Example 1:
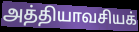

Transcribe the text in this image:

அத்தியாவசியக்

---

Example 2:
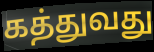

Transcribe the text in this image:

கத்துவது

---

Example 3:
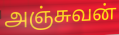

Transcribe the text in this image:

அஞ்சுவன்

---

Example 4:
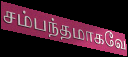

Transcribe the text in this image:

சம்பந்தமாகவே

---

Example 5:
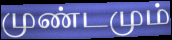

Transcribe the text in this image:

முண்டமும்